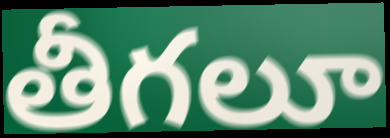
తీగలూ